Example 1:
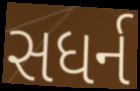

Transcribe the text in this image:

સધર્ન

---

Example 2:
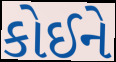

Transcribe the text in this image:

કોઈને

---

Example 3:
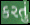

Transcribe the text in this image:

કરતું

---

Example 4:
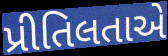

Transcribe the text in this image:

પ્રીતિલતાએ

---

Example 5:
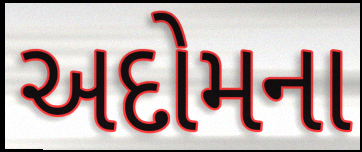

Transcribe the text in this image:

અદોમના